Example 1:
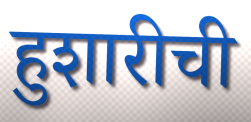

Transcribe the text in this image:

हुशारीची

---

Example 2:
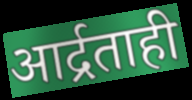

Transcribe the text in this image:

आर्द्रताही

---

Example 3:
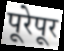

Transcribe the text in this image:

पूरेपूर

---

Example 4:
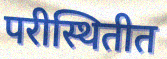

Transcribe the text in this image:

परीस्थितीत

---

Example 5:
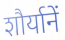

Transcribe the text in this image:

शौर्यानें